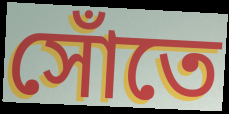
সোঁতে